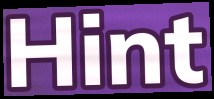
Hint